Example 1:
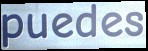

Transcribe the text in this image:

puedes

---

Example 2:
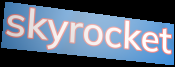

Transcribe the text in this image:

skyrocket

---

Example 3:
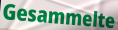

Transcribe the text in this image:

Gesammelte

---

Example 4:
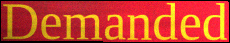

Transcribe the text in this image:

Demanded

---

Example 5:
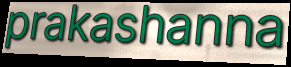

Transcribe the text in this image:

prakashanna